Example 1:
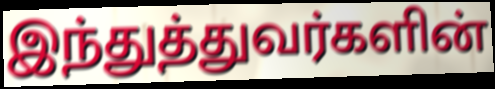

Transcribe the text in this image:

இந்துத்துவர்களின்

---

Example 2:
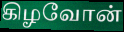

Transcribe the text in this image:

கிழவோன்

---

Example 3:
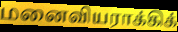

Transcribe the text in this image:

மனைவியராக்கிக்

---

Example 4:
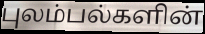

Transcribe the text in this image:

புலம்பல்களின்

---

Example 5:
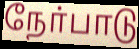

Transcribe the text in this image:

நேர்பாடு